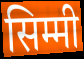
सिम्मी